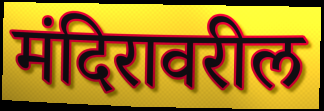
मंदिरावरील